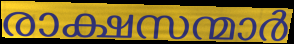
രാക്ഷസന്മാർ